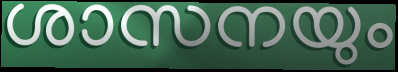
ശാസനയും